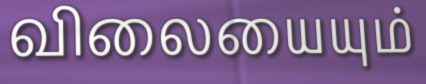
விலையையும்